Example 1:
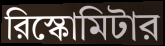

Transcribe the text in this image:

রিস্কোমিটার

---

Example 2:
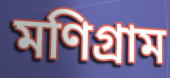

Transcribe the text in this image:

মণিগ্রাম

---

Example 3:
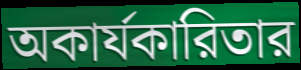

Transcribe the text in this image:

অকার্যকারিতার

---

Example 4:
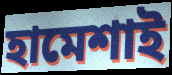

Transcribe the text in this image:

হামেশাই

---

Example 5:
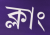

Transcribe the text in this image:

ক্লাং